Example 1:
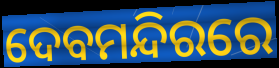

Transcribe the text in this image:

ଦେବମନ୍ଦିରରେ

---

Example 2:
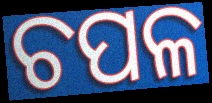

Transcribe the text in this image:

ଚପଳ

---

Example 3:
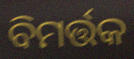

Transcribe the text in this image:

ବିମର୍ତ୍ତକ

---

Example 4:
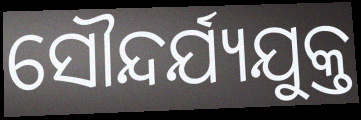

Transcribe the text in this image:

ସୌନ୍ଦର୍ଯ୍ୟଯୁକ୍ତ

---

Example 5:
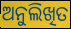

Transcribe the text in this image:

ଅନୁଲିଖିତ